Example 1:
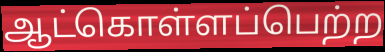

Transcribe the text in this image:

ஆட்கொள்ளப்பெற்ற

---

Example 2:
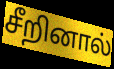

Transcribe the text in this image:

சீறினால்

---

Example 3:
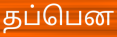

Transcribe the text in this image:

தப்பென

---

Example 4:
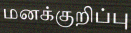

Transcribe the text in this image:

மனக்குறிப்பு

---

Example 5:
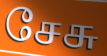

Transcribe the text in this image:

சேசு